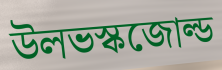
উলভস্কজোল্ড